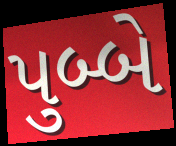
પુબ્બે